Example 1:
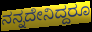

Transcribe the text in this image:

ನನ್ನದೇನಿದ್ದರೂ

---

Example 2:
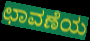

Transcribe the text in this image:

ಛಾವಣೆಯ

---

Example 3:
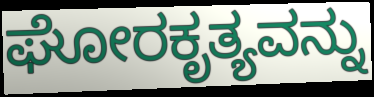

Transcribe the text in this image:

ಘೋರಕೃತ್ಯವನ್ನು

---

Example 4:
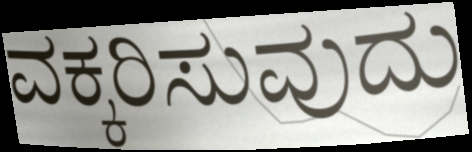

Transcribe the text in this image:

ವಕ್ಕರಿಸುವುದು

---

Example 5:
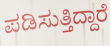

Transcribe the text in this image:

ಪಡಿಸುತ್ತಿದ್ದಾರೆ